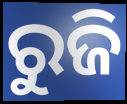
ରୁଜି